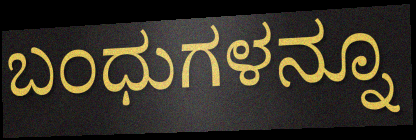
ಬಂಧುಗಳನ್ನೂ